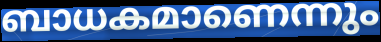
ബാധകമാണെന്നും